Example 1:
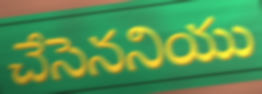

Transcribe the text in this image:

చేసెననియు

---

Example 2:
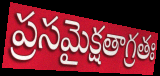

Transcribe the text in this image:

ప్రసమైక్షతాగ్రతః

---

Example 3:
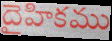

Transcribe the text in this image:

దైహికము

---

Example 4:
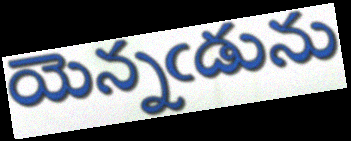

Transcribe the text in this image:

యెన్నఁడును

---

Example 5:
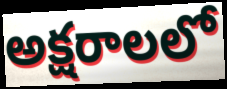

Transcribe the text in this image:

అక్షరాలలో